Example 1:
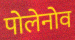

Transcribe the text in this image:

पोलेनोव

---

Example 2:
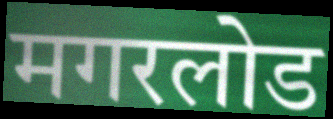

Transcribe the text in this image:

मगरलोड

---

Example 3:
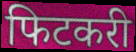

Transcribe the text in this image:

फिटकरी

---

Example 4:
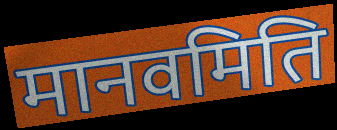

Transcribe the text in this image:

मानवमिति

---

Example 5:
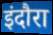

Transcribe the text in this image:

इंदौरा